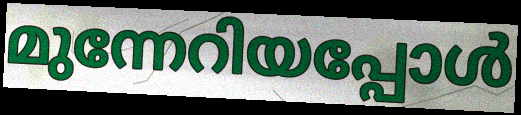
മുന്നേറിയപ്പോൾ